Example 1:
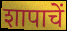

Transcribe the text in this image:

शापाचें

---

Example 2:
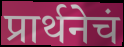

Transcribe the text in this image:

प्रार्थनेचं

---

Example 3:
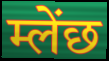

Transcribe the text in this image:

म्लेंछ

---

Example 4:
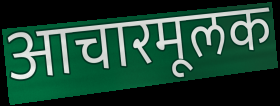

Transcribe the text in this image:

आचारमूलक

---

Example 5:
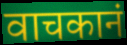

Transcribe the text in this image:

वाचकानं